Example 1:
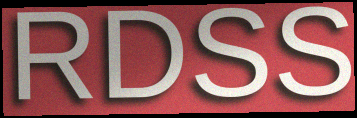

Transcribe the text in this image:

RDSS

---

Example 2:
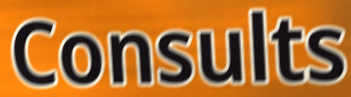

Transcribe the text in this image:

Consults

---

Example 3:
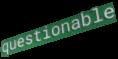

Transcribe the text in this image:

questionable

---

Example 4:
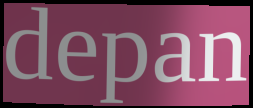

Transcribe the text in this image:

depan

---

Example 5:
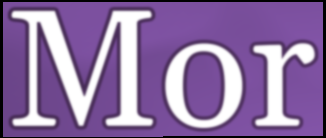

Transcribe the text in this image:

Mor